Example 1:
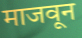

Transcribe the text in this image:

माजवून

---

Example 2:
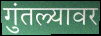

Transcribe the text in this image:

गुंतल्यावर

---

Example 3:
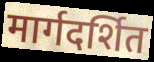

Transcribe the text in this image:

मार्गदर्शित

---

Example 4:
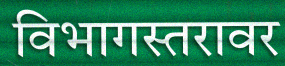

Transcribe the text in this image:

विभागस्तरावर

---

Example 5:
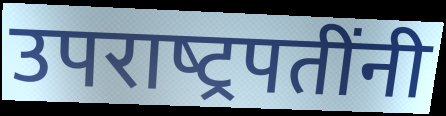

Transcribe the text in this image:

उपराष्ट्रपतींनी